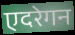
एदरेगन